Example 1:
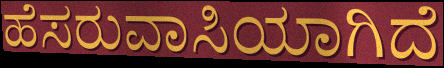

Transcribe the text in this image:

ಹೆಸರುವಾಸಿಯಾಗಿದೆ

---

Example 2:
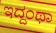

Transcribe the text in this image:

ಇದ್ದಂಥಾ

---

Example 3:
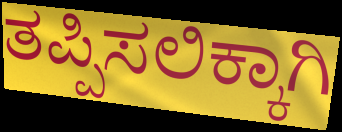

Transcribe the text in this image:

ತಪ್ಪಿಸಲಿಕ್ಕಾಗಿ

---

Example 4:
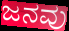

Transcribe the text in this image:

ಜನವು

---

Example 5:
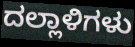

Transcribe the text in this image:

ದಲ್ಲಾಳಿಗಳು